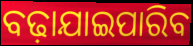
ବଢ଼ାଯାଇପାରିବ